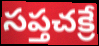
సప్తచక్రే